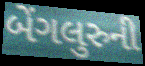
બેંગલુરુની